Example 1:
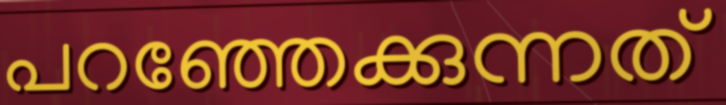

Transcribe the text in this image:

പറഞ്ഞേക്കുന്നത്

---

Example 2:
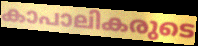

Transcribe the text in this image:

കാപാലികരുടെ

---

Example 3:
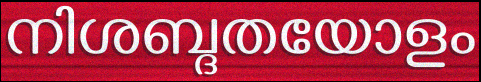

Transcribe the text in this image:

നിശബ്ദതയോളം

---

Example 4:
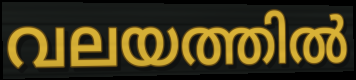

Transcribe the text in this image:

വലയത്തിൽ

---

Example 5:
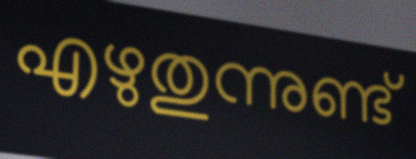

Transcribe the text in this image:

എഴുതുന്നുണ്ട്